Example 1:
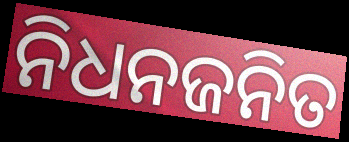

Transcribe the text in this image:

ନିଧନଜନିତ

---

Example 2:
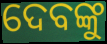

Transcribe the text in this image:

ଦେବଙ୍କୁ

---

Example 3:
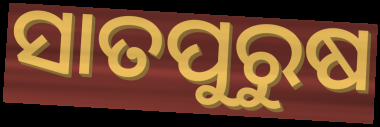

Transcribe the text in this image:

ସାତପୁରୁଷ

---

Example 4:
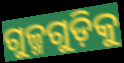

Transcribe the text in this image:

ଗୁଳ୍ମଗୁଡ଼ିକୁ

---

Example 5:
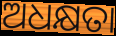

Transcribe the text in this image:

ଅଧକ୍ଷତା